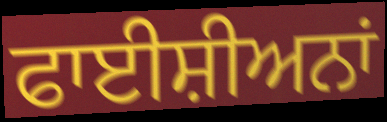
ਫਾਈਸ਼ੀਅਨਾਂ